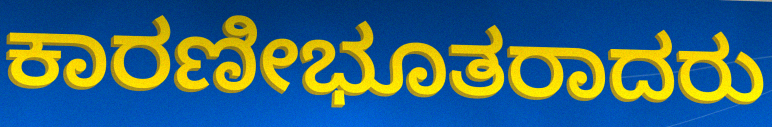
ಕಾರಣೀಭೂತರಾದರು